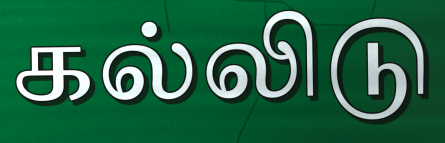
கல்லிடு